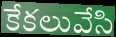
కేకలువేసి